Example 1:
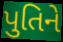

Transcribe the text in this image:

પુતિને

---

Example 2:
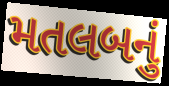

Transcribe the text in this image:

મતલબનું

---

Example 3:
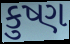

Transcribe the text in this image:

કુષ્ણ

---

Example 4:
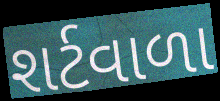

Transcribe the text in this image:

શર્ટવાળા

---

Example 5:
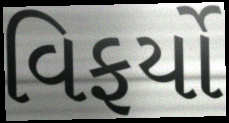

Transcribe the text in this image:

વિફર્યો